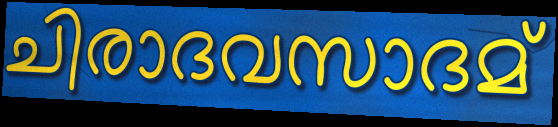
ചിരാദവസാദമ്